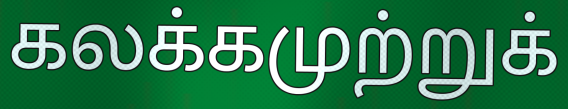
கலக்கமுற்றுக்